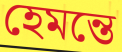
হেমন্তে